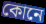
কোনে